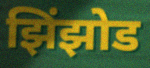
झिंझोड